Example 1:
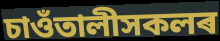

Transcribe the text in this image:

চাওঁতালীসকলৰ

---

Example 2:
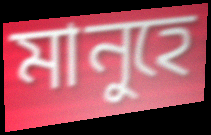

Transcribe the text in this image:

মানুহে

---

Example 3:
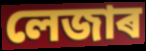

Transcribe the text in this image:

লেজাৰ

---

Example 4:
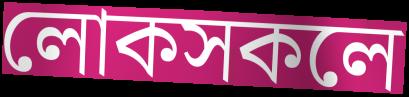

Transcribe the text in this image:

লোকসকলে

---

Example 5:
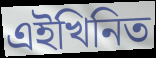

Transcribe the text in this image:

এইখিনিত